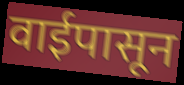
वाईपासून